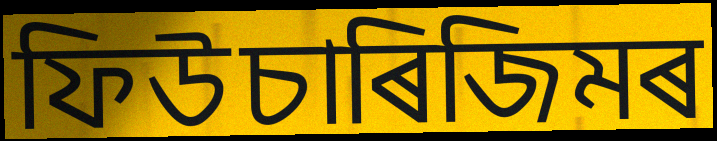
ফিউচাৰিজিমৰ